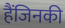
हैंजिनकी